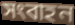
সংবাহন